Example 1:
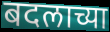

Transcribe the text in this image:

बदलाच्या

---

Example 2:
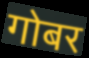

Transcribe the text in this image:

गोबर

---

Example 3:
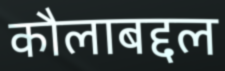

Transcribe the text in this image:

कौलाबद्दल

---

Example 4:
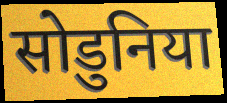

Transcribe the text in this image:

सोडुनिया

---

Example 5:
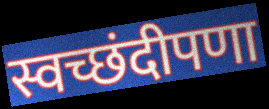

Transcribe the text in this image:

स्वच्छंदीपणा